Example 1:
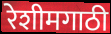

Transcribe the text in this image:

रेशीमगाठी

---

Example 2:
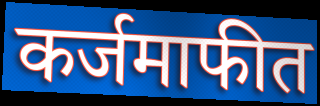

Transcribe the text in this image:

कर्जमाफीत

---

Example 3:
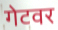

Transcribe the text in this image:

गेटवर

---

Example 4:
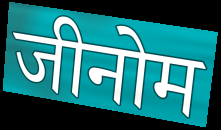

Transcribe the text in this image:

जीनोम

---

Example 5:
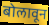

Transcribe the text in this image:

बोलावून